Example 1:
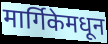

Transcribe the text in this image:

मार्गिकेमधून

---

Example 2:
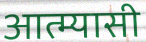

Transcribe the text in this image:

आत्म्यासी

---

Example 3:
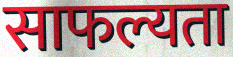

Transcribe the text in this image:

साफल्यता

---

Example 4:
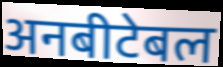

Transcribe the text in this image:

अनबीटेबल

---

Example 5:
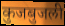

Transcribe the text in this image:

कुजबुजली